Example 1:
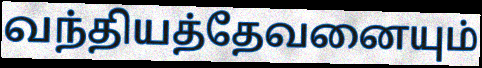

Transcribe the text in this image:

வந்தியத்தேவனையும்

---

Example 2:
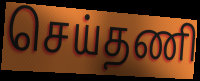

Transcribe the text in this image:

செய்தணி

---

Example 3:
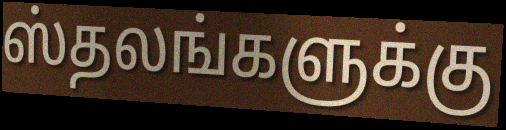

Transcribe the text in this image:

ஸ்தலங்களுக்கு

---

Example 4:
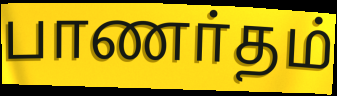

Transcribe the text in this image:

பாணர்தம்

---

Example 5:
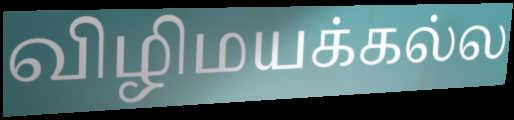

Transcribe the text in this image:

விழிமயக்கல்ல